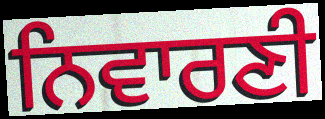
ਨਿਵਾਰਣੀ